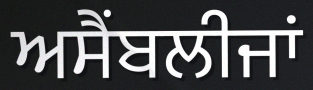
ਅਸੈਂਬਲੀਜਾਂ